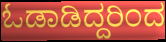
ಓಡಾಡಿದ್ದರಿಂದ